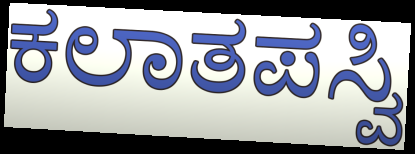
ಕಲಾತಪಸ್ವಿ